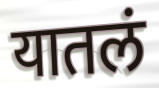
यातलं